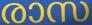
രാസ